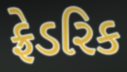
ફ્રેડરિક